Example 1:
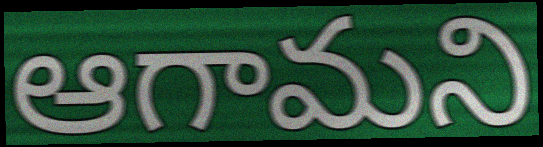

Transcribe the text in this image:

ఆగామని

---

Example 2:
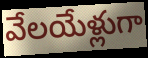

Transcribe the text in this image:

వేలయేళ్లుగా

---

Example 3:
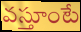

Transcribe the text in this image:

వస్తూంటే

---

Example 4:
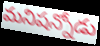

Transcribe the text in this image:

మనిషన్నోడు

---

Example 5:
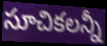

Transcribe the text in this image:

సూచికలన్నీ